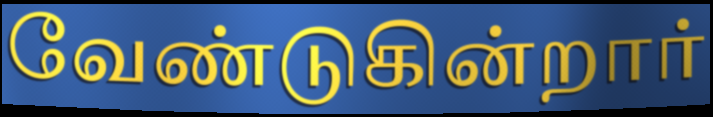
வேண்டுகின்றார்